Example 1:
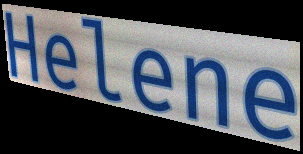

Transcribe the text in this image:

Helene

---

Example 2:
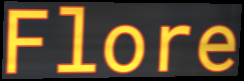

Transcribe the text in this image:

Flore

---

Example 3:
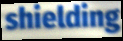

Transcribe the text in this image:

shielding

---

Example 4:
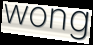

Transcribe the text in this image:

wong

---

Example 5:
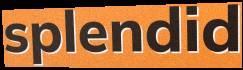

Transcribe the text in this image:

splendid